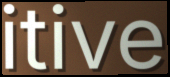
itive